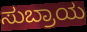
ಸುಬ್ರಾಯ